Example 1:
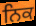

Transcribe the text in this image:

ਨਿਕ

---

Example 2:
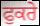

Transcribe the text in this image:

ਫੁਕਰੇ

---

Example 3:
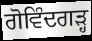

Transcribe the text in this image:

ਗੋਵਿੰਦਗੜ੍ਹ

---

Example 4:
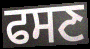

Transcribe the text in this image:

ਫਸਣ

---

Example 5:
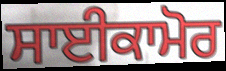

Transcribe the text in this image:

ਸਾਈਕਾਮੋਰ